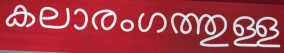
കലാരംഗത്തുള്ള